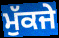
ਮੁੱਕਜੇ